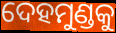
ଦେହମୁଣ୍ଡକୁ